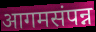
आगमसंपन्न